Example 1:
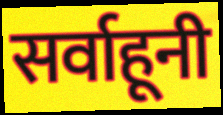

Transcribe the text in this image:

सर्वाहूनी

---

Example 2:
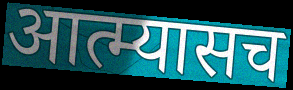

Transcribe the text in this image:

आत्म्यासच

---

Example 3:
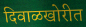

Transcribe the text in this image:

दिवाळखोरीत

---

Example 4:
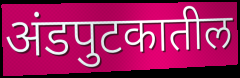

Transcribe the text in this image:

अंडपुटकातील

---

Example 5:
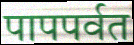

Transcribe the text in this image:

पापपर्वत